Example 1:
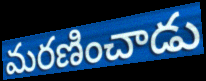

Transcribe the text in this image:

మరణించాడు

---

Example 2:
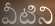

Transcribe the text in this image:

వీటిని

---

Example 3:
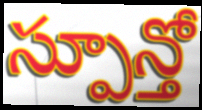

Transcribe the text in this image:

స్పూన్తో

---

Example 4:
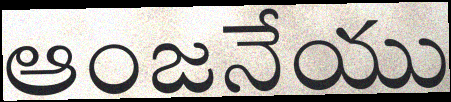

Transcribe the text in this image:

ఆంజనేయు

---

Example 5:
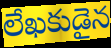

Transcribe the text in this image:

లేఖకుడైన